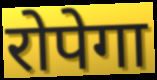
रोपेगा